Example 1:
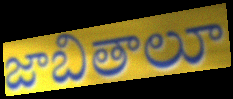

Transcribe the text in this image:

జాబితాలూ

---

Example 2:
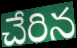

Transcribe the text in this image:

చేరిన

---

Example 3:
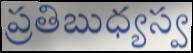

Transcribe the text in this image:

ప్రతిబుధ్యస్వ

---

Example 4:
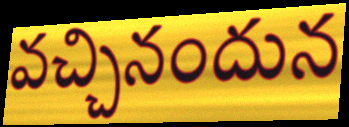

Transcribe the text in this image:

వచ్చినందున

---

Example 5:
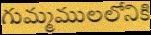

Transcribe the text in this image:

గుమ్మములలోనికి